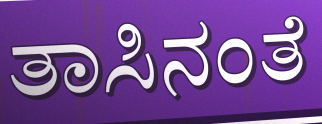
ತಾಸಿನಂತೆ